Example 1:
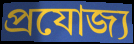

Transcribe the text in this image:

প্রযোজ্য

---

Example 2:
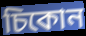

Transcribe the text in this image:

চিকোন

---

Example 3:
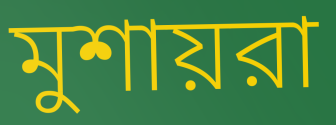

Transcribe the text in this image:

মুশায়রা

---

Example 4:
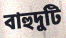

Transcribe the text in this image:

বাহুদুটি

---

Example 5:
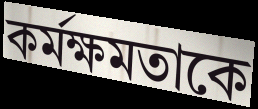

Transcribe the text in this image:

কর্মক্ষমতাকে